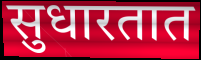
सुधारतात